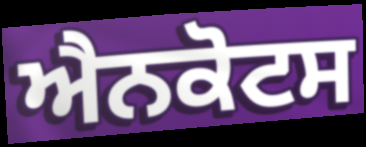
ਐਨਕੋਟਸ